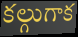
కల్గుగాక